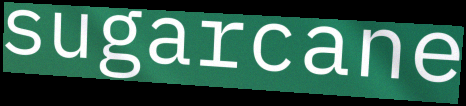
sugarcane